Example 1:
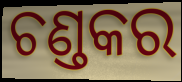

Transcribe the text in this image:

ଚଣ୍ଡକର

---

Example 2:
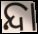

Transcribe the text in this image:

ନ୍ଦା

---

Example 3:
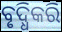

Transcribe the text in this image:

ବୃଦ୍ଧିକରି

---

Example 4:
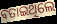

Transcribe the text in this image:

ବତାଇଥିଲେ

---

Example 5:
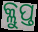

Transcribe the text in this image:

କ୍ଲୁପ୍ତ